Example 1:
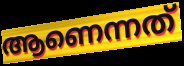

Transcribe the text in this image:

ആണെന്നത്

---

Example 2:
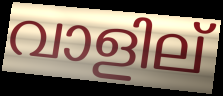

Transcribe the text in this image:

വാളില്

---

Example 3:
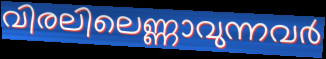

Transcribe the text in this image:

വിരലിലെണ്ണാവുന്നവർ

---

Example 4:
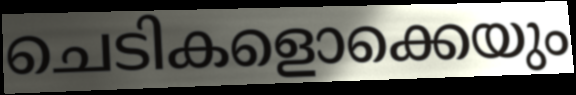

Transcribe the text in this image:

ചെടികളൊക്കെയും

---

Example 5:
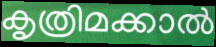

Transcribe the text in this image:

കൃത്രിമക്കാൽ